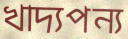
খাদ্যপন্য